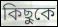
কিছুকে